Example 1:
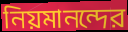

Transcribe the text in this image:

নিয়মানন্দের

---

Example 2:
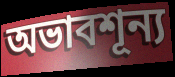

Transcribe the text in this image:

অভাবশূন্য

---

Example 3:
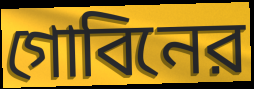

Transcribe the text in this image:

গোবিনের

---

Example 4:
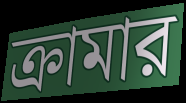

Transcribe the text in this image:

ক্রামার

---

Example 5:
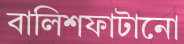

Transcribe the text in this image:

বালিশফাটানো